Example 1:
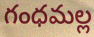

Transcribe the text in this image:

గంధమల్ల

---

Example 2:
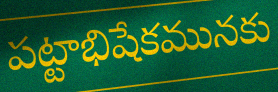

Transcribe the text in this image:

పట్టాభిషేకమునకు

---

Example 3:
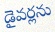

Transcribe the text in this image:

డైవర్లను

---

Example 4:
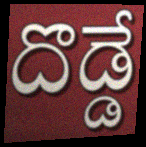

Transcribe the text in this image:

దొడ్డే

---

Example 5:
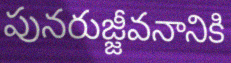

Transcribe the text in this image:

పునరుజ్జీవనానికి